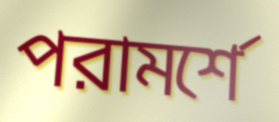
পরামর্শে